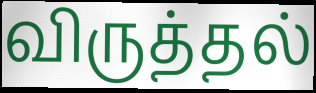
விருத்தல்